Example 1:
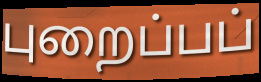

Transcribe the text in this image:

புறைப்பப்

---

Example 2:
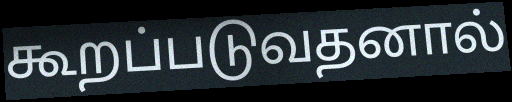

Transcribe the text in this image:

கூறப்படுவதனால்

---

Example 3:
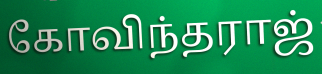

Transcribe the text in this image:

கோவிந்தராஜ்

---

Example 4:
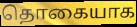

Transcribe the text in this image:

தொகையாக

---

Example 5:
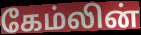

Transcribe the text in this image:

கேம்லின்